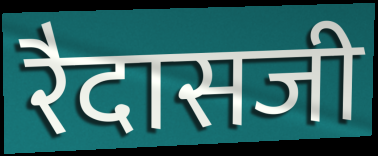
रैदासजी